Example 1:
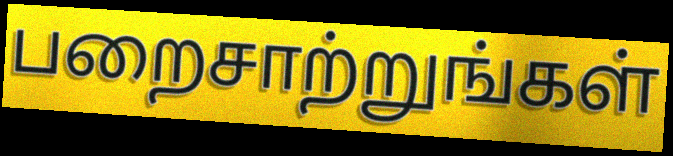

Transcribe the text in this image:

பறைசாற்றுங்கள்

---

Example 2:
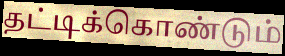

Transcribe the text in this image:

தட்டிக்கொண்டும்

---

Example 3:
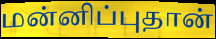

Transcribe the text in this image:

மன்னிப்புதான்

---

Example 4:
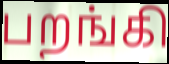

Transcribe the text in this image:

பறங்கி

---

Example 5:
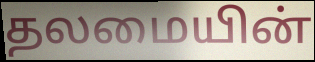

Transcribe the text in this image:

தலமையின்